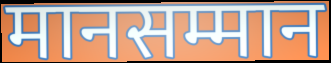
मानसम्मान